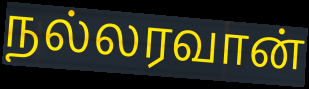
நல்லரவான்